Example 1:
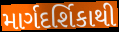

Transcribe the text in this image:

માર્ગદર્શિકાથી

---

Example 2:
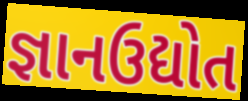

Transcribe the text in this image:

જ્ઞાનઉદ્યોત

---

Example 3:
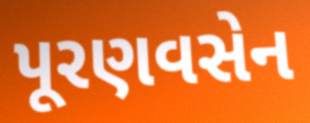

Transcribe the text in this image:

પૂરણવસેન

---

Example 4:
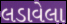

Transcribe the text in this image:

લડાવેલા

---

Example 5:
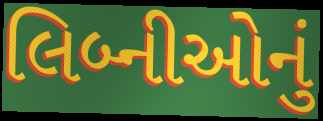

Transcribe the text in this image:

લિબ્નીઓનું